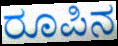
ರೂಪಿನ